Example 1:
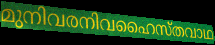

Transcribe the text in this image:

മുനിവരനിവഹൈസ്തവാഥ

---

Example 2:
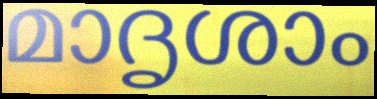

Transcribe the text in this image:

മാദൃശാം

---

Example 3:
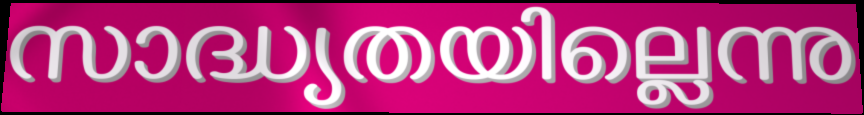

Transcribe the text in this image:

സാദ്ധ്യതയില്ലെന്നു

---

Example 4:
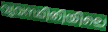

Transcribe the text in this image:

വ്യവസ്ഥിതിയിലെ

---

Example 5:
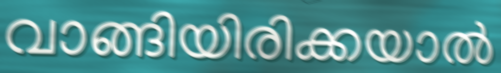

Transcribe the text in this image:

വാങ്ങിയിരിക്കയാൽ